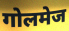
गोलमेज